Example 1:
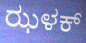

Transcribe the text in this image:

ಝಳಕ್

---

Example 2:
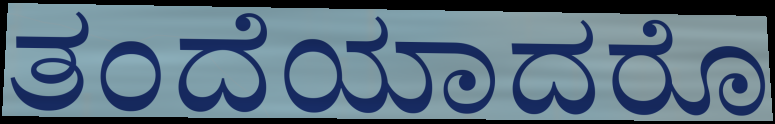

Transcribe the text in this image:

ತಂದೆಯಾದರೊ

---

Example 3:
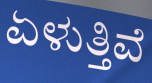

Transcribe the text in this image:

ಏಳುತ್ತಿವೆ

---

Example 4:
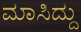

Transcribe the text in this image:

ಮಾಸಿದ್ದು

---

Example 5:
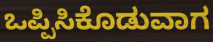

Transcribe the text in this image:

ಒಪ್ಪಿಸಿಕೊಡುವಾಗ